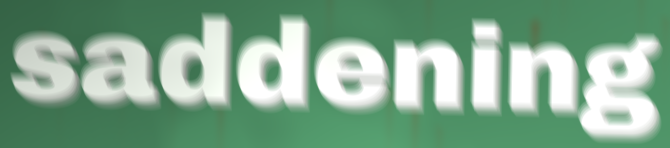
saddening